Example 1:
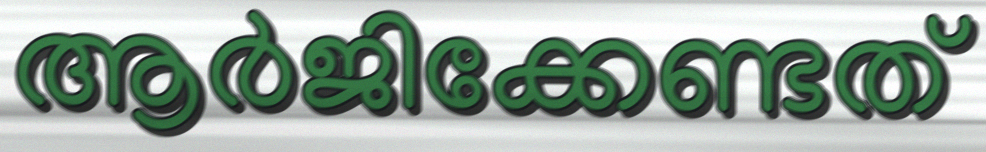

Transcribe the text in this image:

ആർജിക്കേണ്ടത്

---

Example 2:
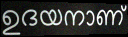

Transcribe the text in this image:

ഉദയനാണ്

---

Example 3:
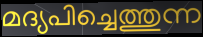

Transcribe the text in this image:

മദ്യപിച്ചെത്തുന്ന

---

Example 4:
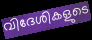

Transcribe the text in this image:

വിദേശികളുടെ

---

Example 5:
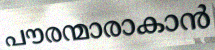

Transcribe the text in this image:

പൗരന്മാരാകാൻ